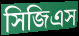
সিজিএস